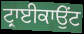
ਟ੍ਰਾਈਕਾਉਂਟ